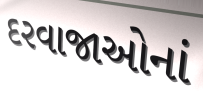
દરવાજાઓનાં